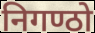
निगण्ठो